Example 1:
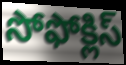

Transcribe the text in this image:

సోఫోక్లిస్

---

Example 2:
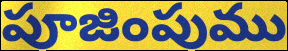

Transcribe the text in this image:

పూజింపుము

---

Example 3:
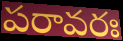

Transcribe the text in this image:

పరావరః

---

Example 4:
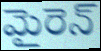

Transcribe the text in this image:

మైరెన్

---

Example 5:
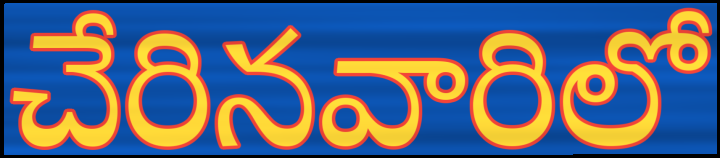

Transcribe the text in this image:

చేరినవారిలో